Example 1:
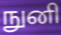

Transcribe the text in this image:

நுனி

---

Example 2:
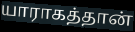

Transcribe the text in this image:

யாராகத்தான்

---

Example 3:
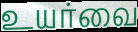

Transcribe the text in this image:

உயர்வை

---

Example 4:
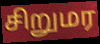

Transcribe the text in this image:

சிறுமர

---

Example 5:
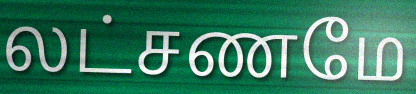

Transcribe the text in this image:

லட்சணமே